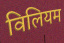
विलियम